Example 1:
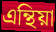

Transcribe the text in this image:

এন্থিয়া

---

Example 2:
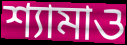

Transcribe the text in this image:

শ্যামাও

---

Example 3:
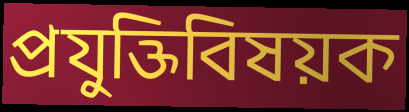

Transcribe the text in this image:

প্রযুক্তিবিষয়ক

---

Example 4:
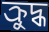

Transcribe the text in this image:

ক্রুদ্ধ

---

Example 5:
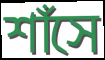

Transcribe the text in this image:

শাঁসে